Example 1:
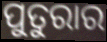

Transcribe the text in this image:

ପୁତୁରାର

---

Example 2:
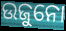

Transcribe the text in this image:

ଉଜୁନୋ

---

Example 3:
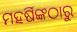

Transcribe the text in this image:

ମହର୍ଷିଙ୍କଠାରୁ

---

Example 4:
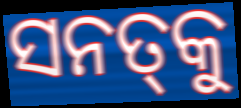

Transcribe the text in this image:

ସନତ୍‍କୁ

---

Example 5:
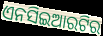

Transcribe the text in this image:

ଏନସିଇଆରଟିର